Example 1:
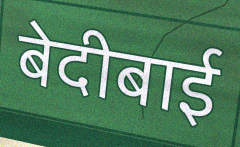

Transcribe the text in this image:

बेदीबाई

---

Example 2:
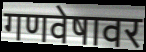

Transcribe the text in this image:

गणवेषावर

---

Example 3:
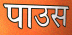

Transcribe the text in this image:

पाउस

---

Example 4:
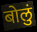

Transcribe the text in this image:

बोलुं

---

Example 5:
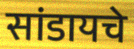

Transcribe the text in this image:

सांडायचे